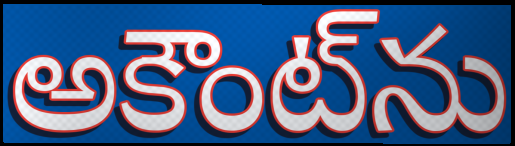
అకౌంట్‌ను